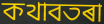
কথাবতৰা